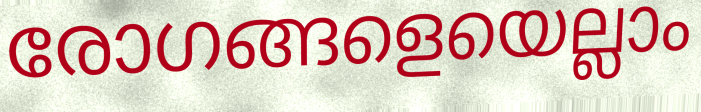
രോഗങ്ങളെയെല്ലാം